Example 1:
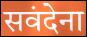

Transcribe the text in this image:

सवंदेना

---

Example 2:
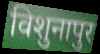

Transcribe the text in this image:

विशुनापुर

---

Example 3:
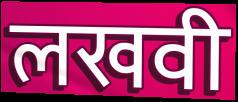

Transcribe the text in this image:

लखवी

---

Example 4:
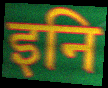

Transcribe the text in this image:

इनि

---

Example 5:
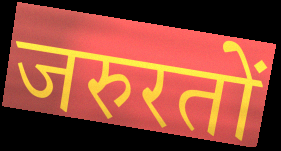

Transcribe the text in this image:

जरुरतों